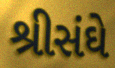
શ્રીસંઘે